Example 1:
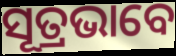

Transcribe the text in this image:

ସୂତ୍ରଭାବେ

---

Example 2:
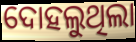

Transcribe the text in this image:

ଦୋହଲୁଥିଲା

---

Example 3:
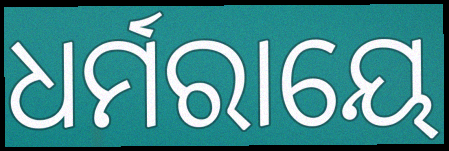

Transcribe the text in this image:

ଧର୍ମରାୟେ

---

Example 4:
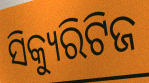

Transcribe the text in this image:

ସିକ୍ୟୁରିଟିଜ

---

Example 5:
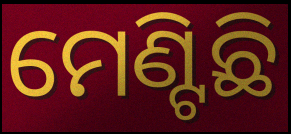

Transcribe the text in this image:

ମେଣ୍ଟିଛି